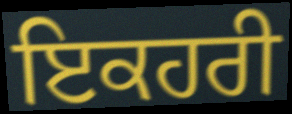
ਇਕਹਰੀ